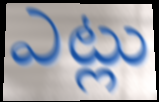
ఎట్లు